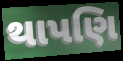
થાપણિ